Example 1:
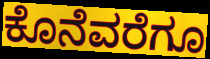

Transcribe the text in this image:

ಕೊನೆವರೆಗೂ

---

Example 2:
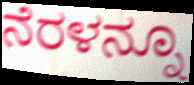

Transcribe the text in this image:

ನೆರಳನ್ನೂ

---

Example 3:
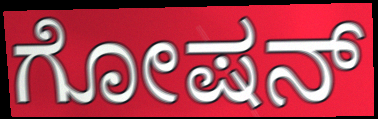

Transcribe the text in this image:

ಗೋಷನ್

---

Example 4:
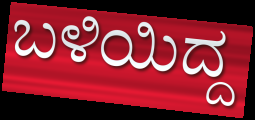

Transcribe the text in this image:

ಬಳಿಯಿದ್ದ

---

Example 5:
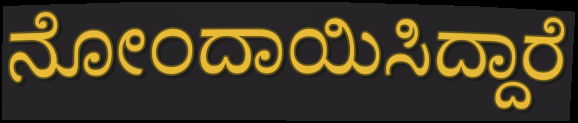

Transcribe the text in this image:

ನೋಂದಾಯಿಸಿದ್ದಾರೆ